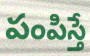
పంపిస్తే